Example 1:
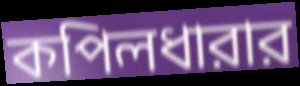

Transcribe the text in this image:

কপিলধারার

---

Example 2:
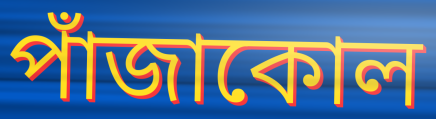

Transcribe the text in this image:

পাঁজাকোল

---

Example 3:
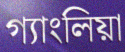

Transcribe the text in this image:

গ্যাংলিয়া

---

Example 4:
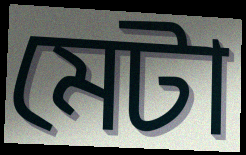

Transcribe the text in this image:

মেটা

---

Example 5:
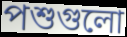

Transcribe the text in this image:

পশুগুলো